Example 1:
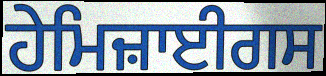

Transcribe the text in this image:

ਹੇਮਿਜ਼ਾਈਗਸ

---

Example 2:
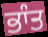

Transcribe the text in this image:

ਭਾੰਤ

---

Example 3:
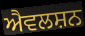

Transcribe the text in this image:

ਐਵਲਸ਼ਨ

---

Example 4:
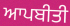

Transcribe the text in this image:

ਆਪਬੀਤੀ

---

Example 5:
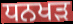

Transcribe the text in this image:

ਧਨਖੜ